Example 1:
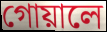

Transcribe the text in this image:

গোয়ালে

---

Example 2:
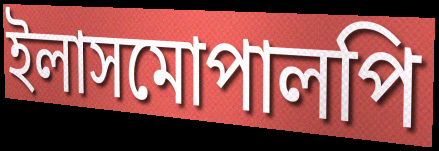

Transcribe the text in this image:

ইলাসমোপালপি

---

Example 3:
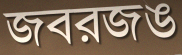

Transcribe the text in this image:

জবরজঙ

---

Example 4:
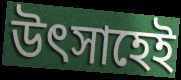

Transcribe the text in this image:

উৎসাহেই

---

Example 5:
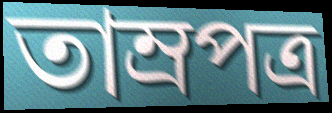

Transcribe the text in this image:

তাম্রপত্র